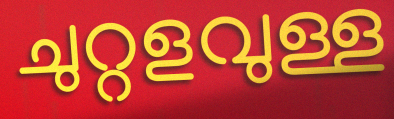
ചുറ്റളവുള്ള